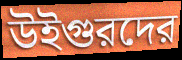
উইগুরদের